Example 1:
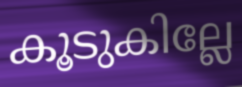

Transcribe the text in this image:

കൂടുകില്ലേ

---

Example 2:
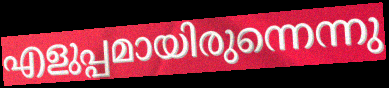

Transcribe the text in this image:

എളുപ്പമായിരുന്നെന്നു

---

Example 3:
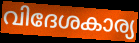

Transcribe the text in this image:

വിദേശകാര്യ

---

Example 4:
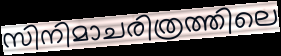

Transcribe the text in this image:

സിനിമാചരിത്രത്തിലെ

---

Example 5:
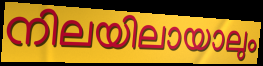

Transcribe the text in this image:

നിലയിലായാലും